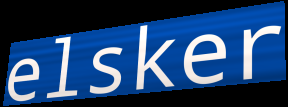
elsker